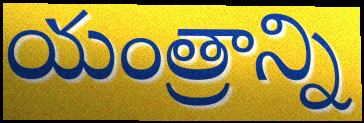
యంత్రాన్ని